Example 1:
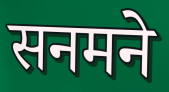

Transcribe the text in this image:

सनमने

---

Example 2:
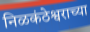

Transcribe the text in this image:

निळकंठेश्वराच्या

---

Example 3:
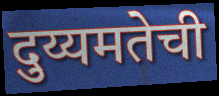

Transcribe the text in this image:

दुय्यमतेची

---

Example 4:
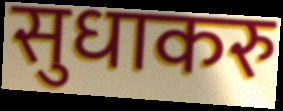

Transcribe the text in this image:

सुधाकरु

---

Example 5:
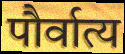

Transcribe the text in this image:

पौर्वात्य